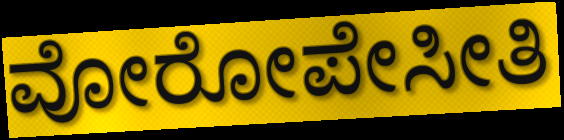
ವೋರೋಪೇಸೀತಿ